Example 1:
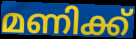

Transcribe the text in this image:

മണിക്ക്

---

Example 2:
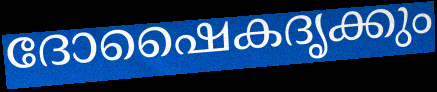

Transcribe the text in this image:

ദോഷൈകദൃക്കും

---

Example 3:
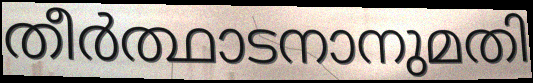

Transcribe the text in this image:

തീർത്ഥാടനാനുമതി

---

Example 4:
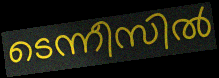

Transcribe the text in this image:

ടെന്നീസിൽ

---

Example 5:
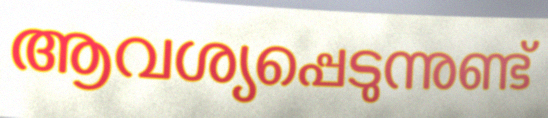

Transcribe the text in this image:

ആവശ്യപ്പെടുന്നുണ്ട്